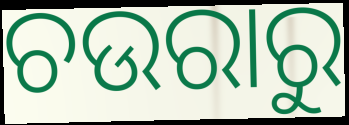
ଚଉରାରୁ